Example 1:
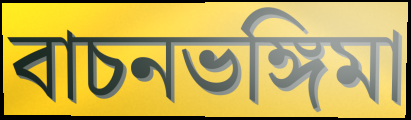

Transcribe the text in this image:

বাচনভঙ্গিমা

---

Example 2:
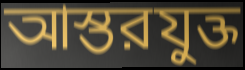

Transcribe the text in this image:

আস্তরযুক্ত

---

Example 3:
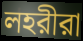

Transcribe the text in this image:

লহরীরা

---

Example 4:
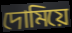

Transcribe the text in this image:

দোমিয়ে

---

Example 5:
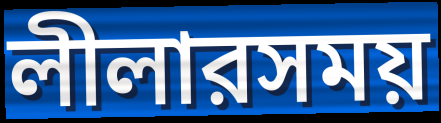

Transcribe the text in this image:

লীলারসময়